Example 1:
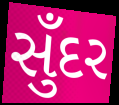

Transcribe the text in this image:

સુઁદર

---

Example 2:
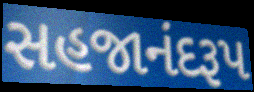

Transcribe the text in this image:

સહજાનંદરૂપ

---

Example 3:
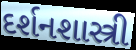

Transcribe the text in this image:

દર્શનશાસ્ત્રી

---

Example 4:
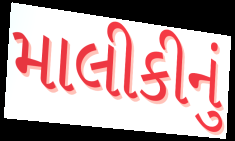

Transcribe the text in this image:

માલીકીનું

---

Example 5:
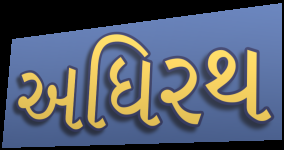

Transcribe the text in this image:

અધિરથ